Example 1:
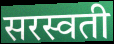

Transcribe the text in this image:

सरस्वती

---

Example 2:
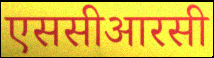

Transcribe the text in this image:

एससीआरसी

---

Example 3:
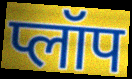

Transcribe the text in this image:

प्लॉप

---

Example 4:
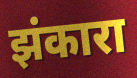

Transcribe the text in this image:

झंकारा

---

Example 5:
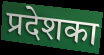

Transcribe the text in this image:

प्रदेशका